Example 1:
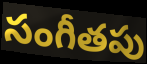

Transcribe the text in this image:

సంగీతపు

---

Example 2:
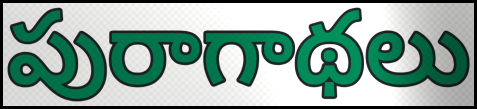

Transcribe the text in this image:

పురాగాథలు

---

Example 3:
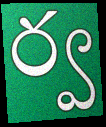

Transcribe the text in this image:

ర్వ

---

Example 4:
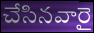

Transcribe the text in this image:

చేసినవారై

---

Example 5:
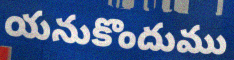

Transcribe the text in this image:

యనుకొందుము